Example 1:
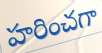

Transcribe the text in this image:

హరించగా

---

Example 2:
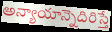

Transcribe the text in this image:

అన్యాయాన్నెదిరిస్తే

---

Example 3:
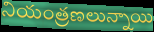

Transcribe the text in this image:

నియంత్రణలున్నాయి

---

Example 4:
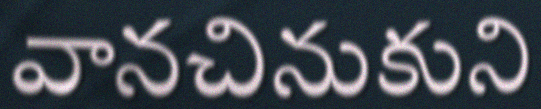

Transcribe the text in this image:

వానచినుకుని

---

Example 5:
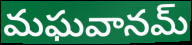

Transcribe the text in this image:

మఘవానమ్